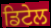
ਡਿਟੇਲ